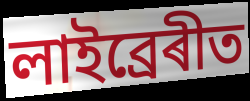
লাইব্ৰেৰীত